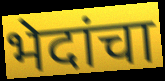
भेदांचा